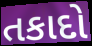
તકાદો